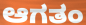
ಆಗತಂ